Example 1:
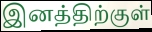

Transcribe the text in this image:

இனத்திற்குள்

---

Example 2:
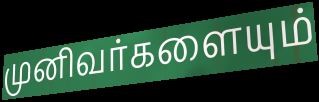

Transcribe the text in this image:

முனிவர்களையும்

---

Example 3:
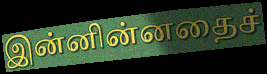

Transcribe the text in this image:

இன்னின்னதைச்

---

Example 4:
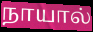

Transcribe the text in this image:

நாயால்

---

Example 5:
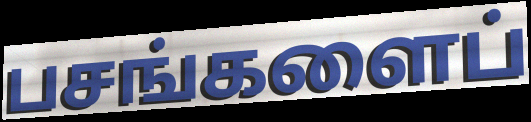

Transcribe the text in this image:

பசங்களைப்